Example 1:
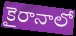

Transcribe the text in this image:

కైరానాలో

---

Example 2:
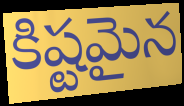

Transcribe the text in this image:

కిష్టమైన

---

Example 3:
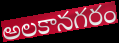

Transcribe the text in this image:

అలకానగరం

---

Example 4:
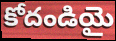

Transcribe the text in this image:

కోదండియై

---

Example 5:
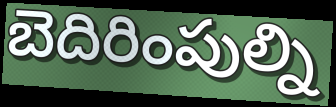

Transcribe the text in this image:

బెదిరింపుల్ని